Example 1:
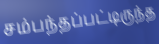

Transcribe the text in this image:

சம்பந்தப்பட்டிருந்த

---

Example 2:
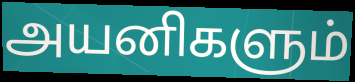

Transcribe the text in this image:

அயனிகளும்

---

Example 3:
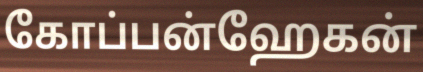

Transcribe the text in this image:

கோப்பன்ஹேகன்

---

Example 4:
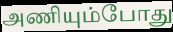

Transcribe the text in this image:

அணியும்போது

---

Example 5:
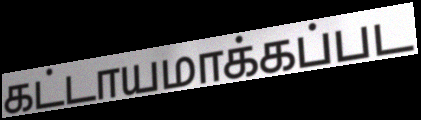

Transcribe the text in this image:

கட்டாயமாக்கப்பட